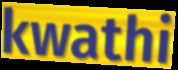
kwathi